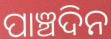
ପାଞ୍ଚଦିନ